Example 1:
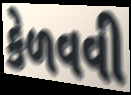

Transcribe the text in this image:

કેળવવી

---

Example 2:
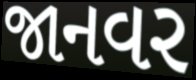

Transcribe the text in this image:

જાનવર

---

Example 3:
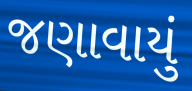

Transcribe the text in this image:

જણાવાયું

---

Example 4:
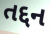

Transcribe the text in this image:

તદ્દન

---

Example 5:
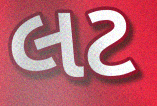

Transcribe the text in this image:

લટ